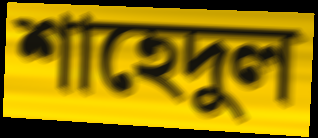
শাহেদুল